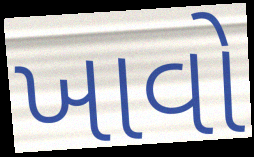
ખાવો